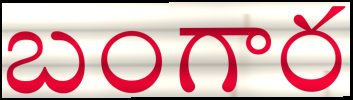
బంగార